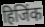
हिजिंक